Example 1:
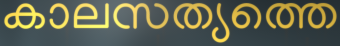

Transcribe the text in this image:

കാലസത്യത്തെ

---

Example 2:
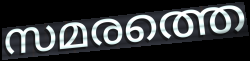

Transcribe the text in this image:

സമരത്തെ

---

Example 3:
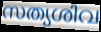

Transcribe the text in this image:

സത്യശിവ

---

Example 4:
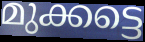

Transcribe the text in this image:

മുക്കട്ടെ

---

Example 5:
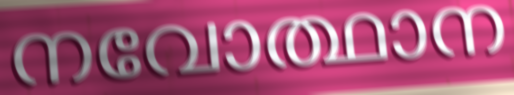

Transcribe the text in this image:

നവോത്ഥാന